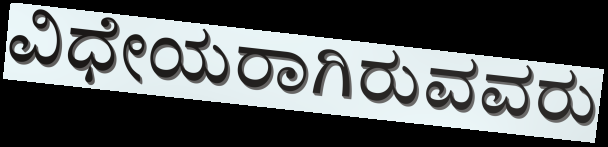
ವಿಧೇಯರಾಗಿರುವವರು